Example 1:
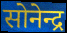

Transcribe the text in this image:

सोनेन्द्र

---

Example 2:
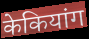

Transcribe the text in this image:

केकियांग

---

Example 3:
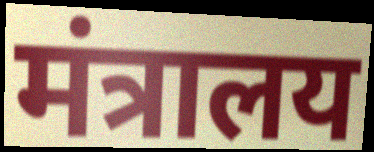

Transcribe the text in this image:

मंत्रालय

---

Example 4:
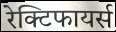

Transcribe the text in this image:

रेक्टिफायर्स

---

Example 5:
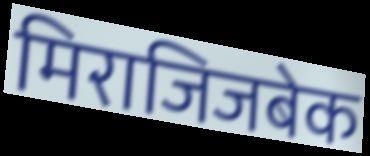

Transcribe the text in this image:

मिराजिजबेक